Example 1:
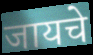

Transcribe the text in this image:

जायचे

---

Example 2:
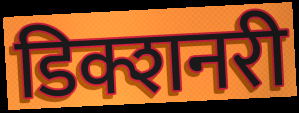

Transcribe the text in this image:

डिक्शनरी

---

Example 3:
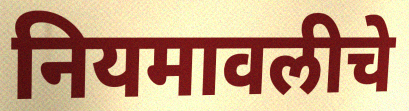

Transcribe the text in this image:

नियमावलीचे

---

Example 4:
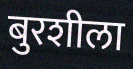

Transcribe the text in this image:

बुरशीला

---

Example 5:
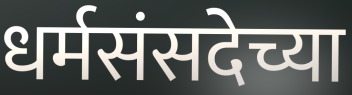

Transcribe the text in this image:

धर्मसंसदेच्या